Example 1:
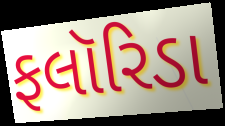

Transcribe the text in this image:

ફલૉરિડા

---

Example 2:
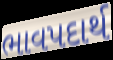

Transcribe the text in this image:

ભાવપદાર્થ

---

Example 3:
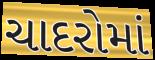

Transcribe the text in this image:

ચાદરોમાં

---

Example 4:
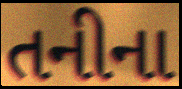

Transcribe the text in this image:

તનીના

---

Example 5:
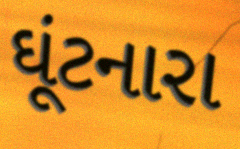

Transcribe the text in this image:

ઘૂંટનારા